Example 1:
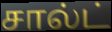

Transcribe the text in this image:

சால்ட்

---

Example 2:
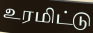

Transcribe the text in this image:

உரமிட்டு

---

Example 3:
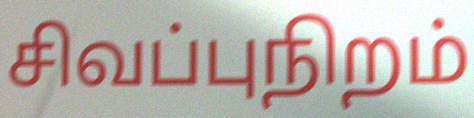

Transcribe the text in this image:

சிவப்புநிறம்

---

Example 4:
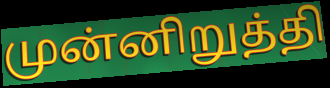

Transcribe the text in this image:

முன்னிறுத்தி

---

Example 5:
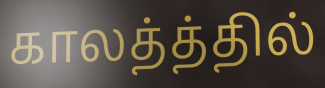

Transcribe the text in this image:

காலத்த்தில்